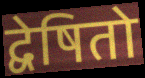
द्वेषितो